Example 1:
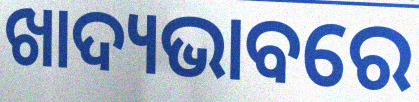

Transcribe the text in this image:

ଖାଦ୍ୟଭାବରେ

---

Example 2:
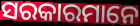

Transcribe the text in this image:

ସରକାରମାନେ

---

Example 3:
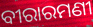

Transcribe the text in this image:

ବୀରାରମଣୀ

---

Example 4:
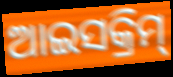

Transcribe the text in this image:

ଆଇସକ୍ରିମ୍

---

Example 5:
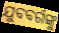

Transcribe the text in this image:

ଯୁବବର୍ଗଙ୍କୁ